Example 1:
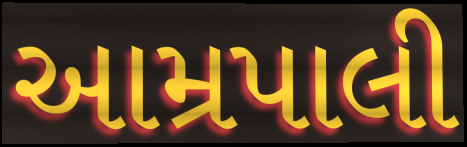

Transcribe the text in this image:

આમ્રપાલી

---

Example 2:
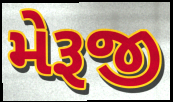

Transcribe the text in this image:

મેરૂજી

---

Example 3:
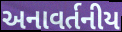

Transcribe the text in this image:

અનાવર્તનીય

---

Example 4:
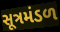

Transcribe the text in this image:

સૂત્રમંડળ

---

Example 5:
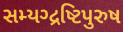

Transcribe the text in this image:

સમ્યગ્દ્રષ્ટિપુરુષ